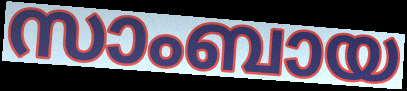
സാംബായ